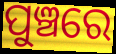
ପୁଞ୍ଚରେ